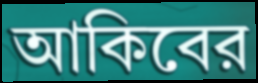
আকিবের